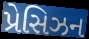
પ્રેસિઝન